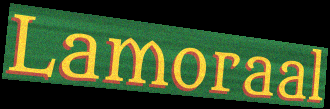
Lamoraal